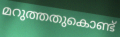
മറുത്തതുകൊണ്ട്